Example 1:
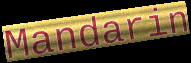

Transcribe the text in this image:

Mandarin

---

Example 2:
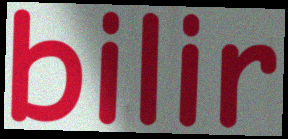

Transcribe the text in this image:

bilir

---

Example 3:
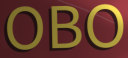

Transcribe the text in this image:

OBO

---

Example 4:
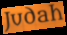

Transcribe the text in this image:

Judah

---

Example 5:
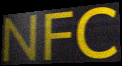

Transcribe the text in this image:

NFC